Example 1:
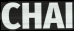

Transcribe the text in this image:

CHAI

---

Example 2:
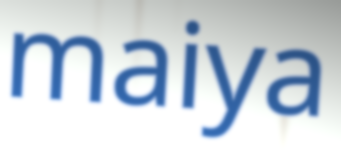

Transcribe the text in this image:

maiya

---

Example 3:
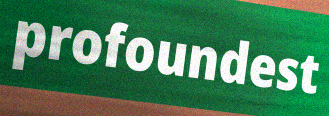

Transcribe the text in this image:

profoundest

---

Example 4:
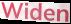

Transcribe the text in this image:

Widen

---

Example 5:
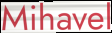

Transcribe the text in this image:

Mihavel